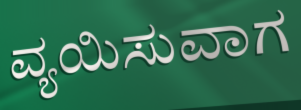
ವ್ಯಯಿಸುವಾಗ